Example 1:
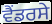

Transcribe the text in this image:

ਵੈਂਡਰਸੇ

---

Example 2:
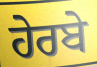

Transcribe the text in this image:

ਹੇਰਬੇ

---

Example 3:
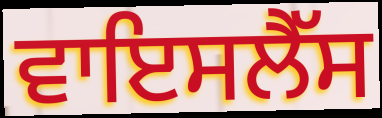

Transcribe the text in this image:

ਵਾਇਸਲੈੱਸ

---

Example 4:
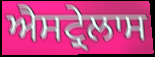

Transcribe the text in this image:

ਐਸਟ੍ਰੇਲਾਸ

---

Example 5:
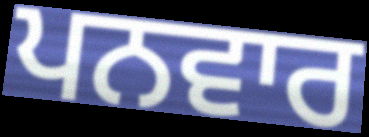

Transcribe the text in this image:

ਪਨਵਾਰ